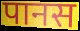
पानस